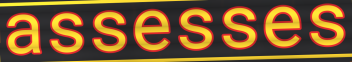
assesses